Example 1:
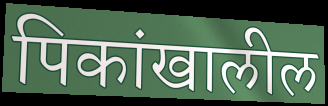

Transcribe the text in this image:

पिकांखालील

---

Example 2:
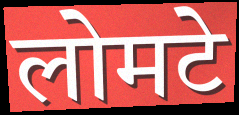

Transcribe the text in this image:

लोमटे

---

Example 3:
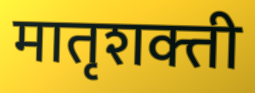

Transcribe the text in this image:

मातृशक्ती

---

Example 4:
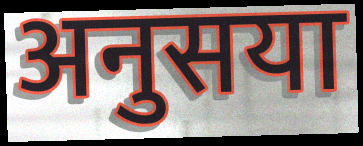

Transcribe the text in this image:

अनुसया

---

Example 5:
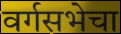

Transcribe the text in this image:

वर्गसभेचा